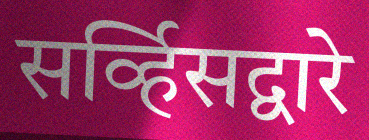
सर्व्हिसद्वारे